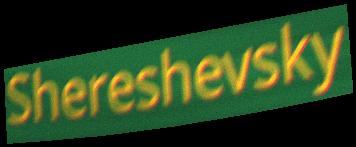
Shereshevsky